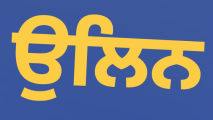
ਉਲਿਨ